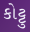
કોટ્ટુ